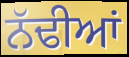
ਨੱਢੀਆਂ